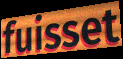
fuisset